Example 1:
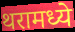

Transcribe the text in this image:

थरामध्ये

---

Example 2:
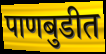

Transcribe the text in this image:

पाणबुडीत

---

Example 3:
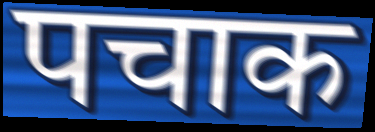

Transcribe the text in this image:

पचाक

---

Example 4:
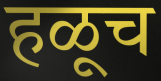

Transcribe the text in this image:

हळूच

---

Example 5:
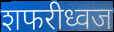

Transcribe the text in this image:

शफरीध्वज